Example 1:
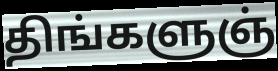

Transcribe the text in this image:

திங்களுஞ்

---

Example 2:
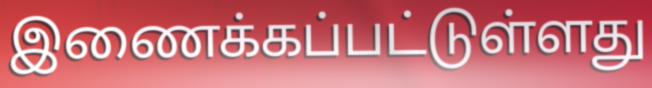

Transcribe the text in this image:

இணைக்கப்பட்டுள்ளது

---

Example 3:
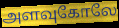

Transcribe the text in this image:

அளவுகோலே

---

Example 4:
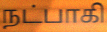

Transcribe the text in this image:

நட்பாகி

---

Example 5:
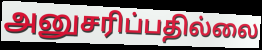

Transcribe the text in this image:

அனுசரிப்பதில்லை